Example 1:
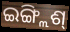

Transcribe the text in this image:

ଇଙ୍ଗ୍ଲିଶ୍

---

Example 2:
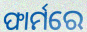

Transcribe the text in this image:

ଫାର୍ମରେ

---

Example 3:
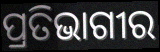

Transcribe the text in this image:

ପ୍ରତିଭାଗୀର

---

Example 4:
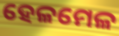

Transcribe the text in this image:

ହେଳମେଳ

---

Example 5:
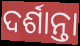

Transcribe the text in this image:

ଦର୍ଶାନ୍ତା